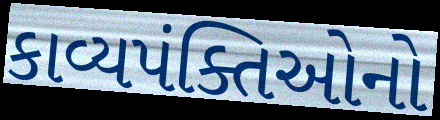
કાવ્યપંક્તિઓનો